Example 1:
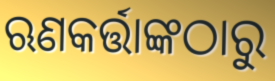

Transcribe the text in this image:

ଋଣକର୍ତ୍ତାଙ୍କଠାରୁ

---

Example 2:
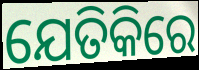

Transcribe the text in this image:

ଯେତିକିରେ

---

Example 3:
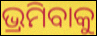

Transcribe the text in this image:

ଭ୍ରମିବାକୁ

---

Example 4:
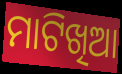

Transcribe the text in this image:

ମାଟିଖିଆ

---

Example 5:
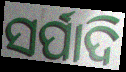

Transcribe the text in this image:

ସର୍ପାଦି